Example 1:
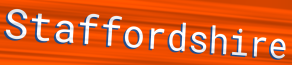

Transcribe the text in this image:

Staffordshire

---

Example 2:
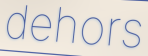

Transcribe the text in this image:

dehors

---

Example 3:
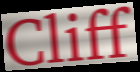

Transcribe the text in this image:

Cliff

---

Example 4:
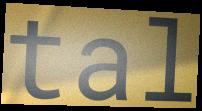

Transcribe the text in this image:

tal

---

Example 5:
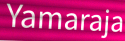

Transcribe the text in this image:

Yamaraja